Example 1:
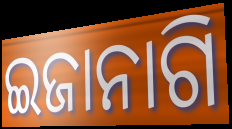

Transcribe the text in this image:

ଇଜାନାଗି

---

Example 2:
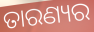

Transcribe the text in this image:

ତାରଣ୍ୟର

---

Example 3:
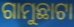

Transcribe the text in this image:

ଗାମୁଛାଟା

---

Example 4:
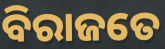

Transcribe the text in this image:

ବିରାଜତେ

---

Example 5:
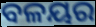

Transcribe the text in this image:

ବଳୟର